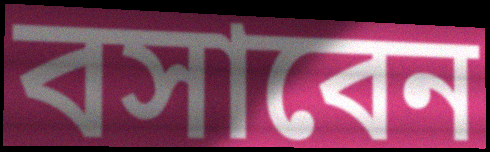
বসাবেন